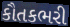
કૌતકભરી